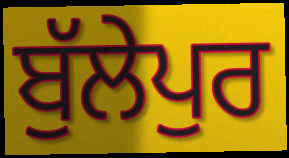
ਬੁੱਲੇਪੁਰ